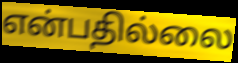
என்பதில்லை